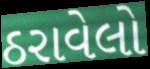
ઠરાવેલો